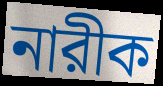
নারীক